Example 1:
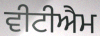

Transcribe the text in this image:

ਵੀਟੀਐਮ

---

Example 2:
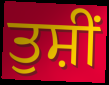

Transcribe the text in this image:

ਤੁਸ਼ੀਂ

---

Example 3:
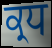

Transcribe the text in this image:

ਕ੍ਰਧ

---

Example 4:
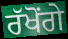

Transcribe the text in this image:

ਰੱਖੋਂਗੇ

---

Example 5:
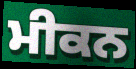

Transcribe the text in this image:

ਮੀਕਨ